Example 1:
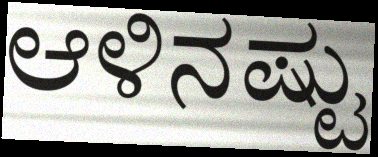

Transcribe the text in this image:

ಆಳಿನಷ್ಟು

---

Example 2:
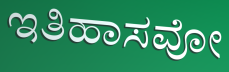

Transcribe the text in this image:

ಇತಿಹಾಸವೋ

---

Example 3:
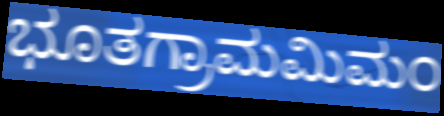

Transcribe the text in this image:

ಭೂತಗ್ರಾಮಮಿಮಂ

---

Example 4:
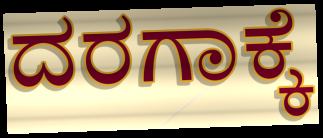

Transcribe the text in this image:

ದರಗಾಕ್ಕೆ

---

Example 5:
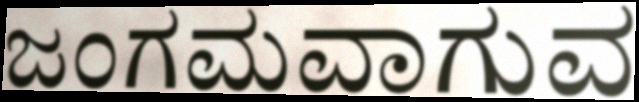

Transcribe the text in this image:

ಜಂಗಮವಾಗುವ